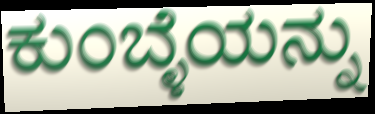
ಕುಂಬ್ಳೆಯನ್ನು